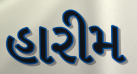
હારીમ